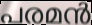
പരമൻ